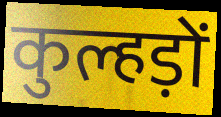
कुल्हड़ों